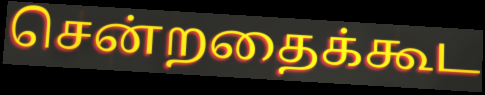
சென்றதைக்கூட